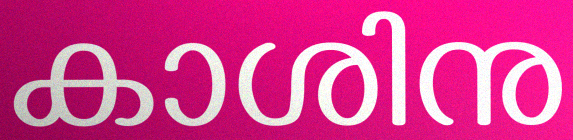
കാശിനു